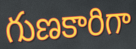
గుణకారిగా